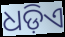
ଧଡ଼ିଏ